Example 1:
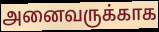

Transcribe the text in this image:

அனைவருக்காக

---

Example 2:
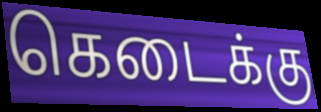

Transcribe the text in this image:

கெடைக்கு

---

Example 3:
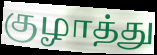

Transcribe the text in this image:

குழாத்து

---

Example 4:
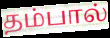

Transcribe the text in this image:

தம்பால்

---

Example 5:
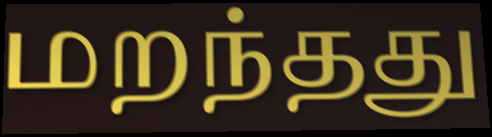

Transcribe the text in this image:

மறந்தது